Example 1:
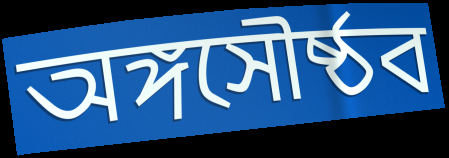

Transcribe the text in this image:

অঙ্গসৌষ্ঠব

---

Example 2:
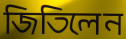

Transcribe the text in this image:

জিতিলেন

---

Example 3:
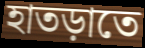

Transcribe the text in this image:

হাতড়াতে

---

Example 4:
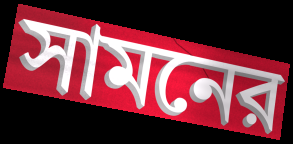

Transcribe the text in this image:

সামনের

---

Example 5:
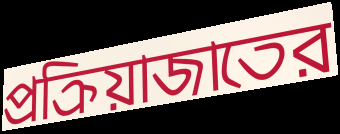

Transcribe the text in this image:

প্রক্রিয়াজাতের